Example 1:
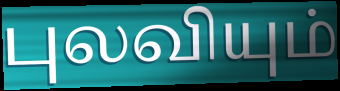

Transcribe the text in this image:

புலவியும்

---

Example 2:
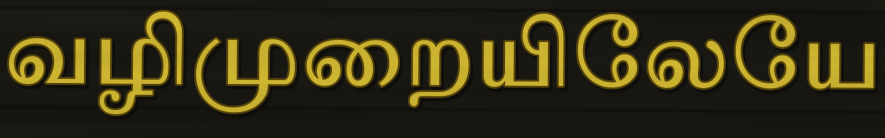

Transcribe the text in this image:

வழிமுறையிலேயே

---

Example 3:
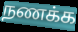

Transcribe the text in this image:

நணக்க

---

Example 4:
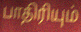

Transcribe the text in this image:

பாதிரியும்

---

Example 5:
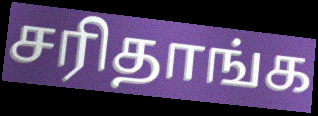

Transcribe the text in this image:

சரிதாங்க